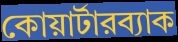
কোয়ার্টারব্যাক